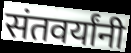
संतवर्यांनी